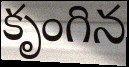
కృంగిన